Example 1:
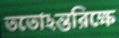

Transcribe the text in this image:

ততোঽন্তরিক্ষে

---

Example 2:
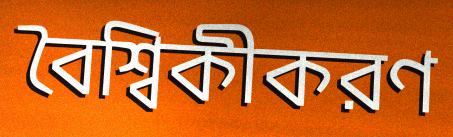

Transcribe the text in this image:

বৈশ্বিকীকরণ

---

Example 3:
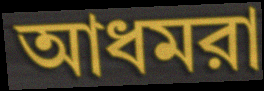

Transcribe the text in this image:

আধমরা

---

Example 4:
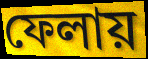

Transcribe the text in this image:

ফেলায়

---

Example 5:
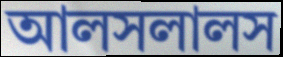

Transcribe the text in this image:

আলসলালস